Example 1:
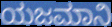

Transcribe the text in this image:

ಯಜಮಾನಿ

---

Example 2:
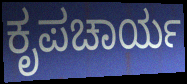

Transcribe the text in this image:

ಕೃಪಚಾರ್ಯ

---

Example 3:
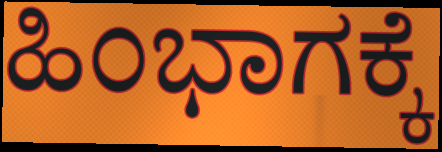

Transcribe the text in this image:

ಹಿಂಭಾಗಕ್ಕೆ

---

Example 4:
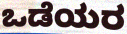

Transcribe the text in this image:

ಒಡೆಯರ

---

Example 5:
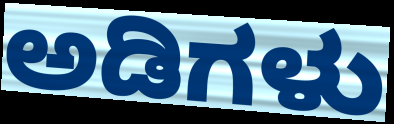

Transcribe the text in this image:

ಅಡಿಗಳು